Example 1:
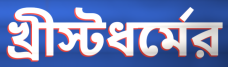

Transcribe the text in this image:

খ্রীস্টধর্মের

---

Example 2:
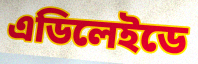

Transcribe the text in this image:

এডিলেইডে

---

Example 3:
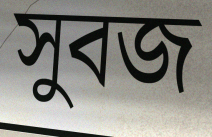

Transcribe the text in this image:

সুবজ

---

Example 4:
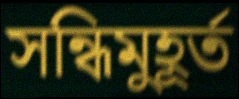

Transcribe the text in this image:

সন্ধিমুহূর্ত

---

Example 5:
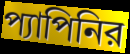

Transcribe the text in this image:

প্যাপিনির